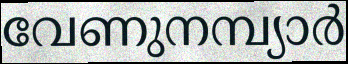
വേണുനമ്പ്യാർ